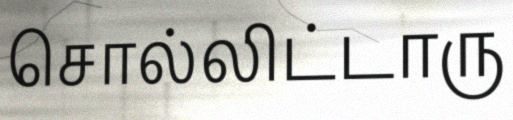
சொல்லிட்டாரு